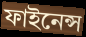
ফাইনেন্স